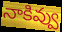
నాకివ్వు